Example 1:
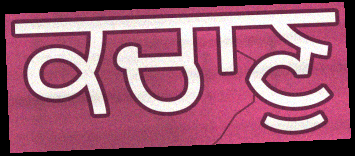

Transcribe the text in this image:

ਕਚਾਣੁ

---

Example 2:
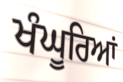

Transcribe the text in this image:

ਖੰਘੂਰਿਆਂ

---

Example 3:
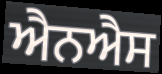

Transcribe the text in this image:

ਐਨਐਸ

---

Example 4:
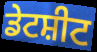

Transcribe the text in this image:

ਡੇਟਸ਼ੀਟ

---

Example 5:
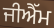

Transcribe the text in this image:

ਜੀਐੱਮ